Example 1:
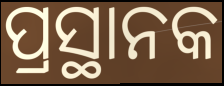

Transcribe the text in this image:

ପ୍ରସ୍ଥାନକ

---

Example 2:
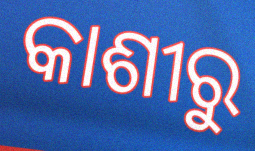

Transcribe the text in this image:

କାଶୀରୁ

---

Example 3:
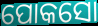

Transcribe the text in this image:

ପୋକସୋ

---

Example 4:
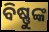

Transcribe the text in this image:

ବିଷ୍ଣୁଙ୍କ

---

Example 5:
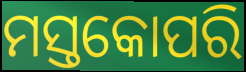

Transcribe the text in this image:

ମସ୍ତକୋପରି